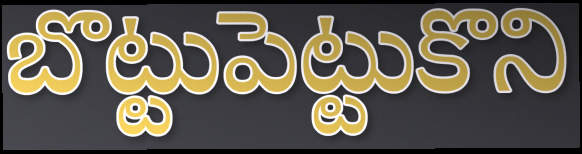
బొట్టుపెట్టుకొని